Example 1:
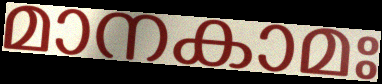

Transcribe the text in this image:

മാനകാമഃ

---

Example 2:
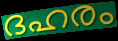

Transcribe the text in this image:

ദഹരം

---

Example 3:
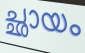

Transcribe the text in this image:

ച്ഛായം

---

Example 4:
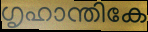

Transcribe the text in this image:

ഗൃഹാന്തികേ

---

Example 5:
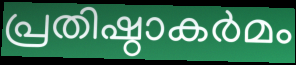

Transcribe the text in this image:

പ്രതിഷ്ഠാകർമം